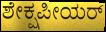
ಶೇಕ್ಷಪೀಯರ್